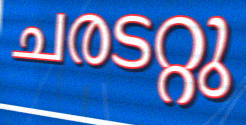
ചരടറ്റു